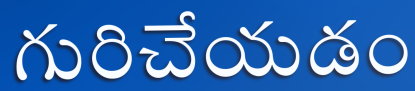
గురిచేయడం